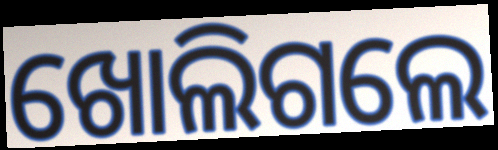
ଖୋଲିଗଲେ